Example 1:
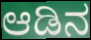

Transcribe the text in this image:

ಆಡಿನ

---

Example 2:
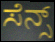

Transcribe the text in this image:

ಸೆನ್ಸ್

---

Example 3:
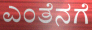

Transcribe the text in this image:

ಎಂತೆನಗೆ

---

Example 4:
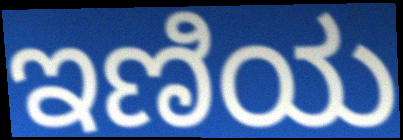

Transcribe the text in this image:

ಇಣಿಯ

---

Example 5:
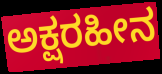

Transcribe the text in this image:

ಅಕ್ಷರಹೀನ